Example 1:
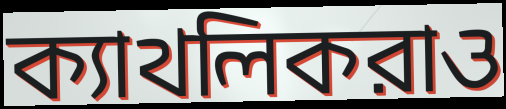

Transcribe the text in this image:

ক্যাথলিকরাও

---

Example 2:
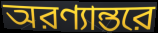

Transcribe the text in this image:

অরণ্যান্তরে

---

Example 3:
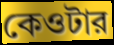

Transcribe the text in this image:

কেওটার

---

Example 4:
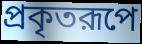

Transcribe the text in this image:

প্রকৃতরূপে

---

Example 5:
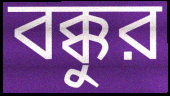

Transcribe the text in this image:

বক্কুর